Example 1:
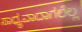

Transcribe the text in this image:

ಸಾಧ್ಯವಾದಾಗಲೆಲ್ಲ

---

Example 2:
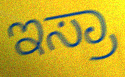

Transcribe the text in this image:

ಇಸ್ರಾ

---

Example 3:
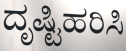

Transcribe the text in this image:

ದೃಷ್ಟಿಹರಿಸಿ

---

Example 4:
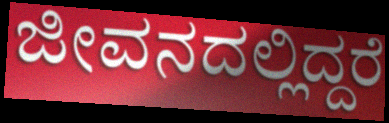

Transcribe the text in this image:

ಜೀವನದಲ್ಲಿದ್ದರೆ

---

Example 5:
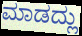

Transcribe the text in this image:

ಮಾಡದ್ಲು